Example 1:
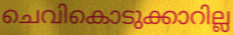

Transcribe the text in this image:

ചെവികൊടുക്കാറില്ല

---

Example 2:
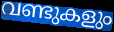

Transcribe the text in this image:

വണ്ടുകളും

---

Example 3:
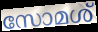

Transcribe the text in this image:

സോമശ്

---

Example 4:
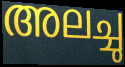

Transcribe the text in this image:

അലച്ചു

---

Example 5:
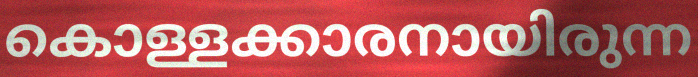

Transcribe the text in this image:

കൊള്ളക്കാരനായിരുന്ന